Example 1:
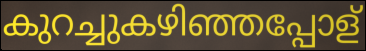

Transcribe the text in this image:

കുറച്ചുകഴിഞ്ഞപ്പോള്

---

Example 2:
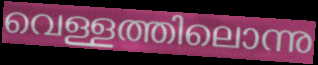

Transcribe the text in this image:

വെള്ളത്തിലൊന്നു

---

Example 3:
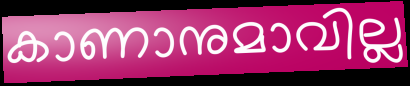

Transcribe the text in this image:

കാണാനുമാവില്ല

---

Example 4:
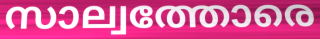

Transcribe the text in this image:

സാല്വത്തോരെ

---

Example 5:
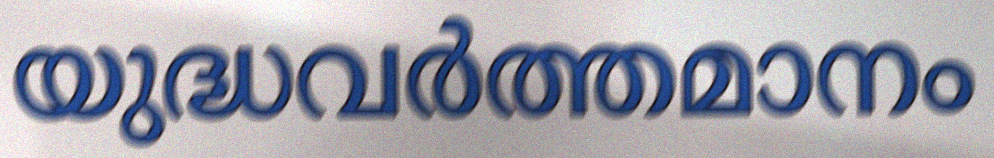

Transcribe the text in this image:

യുദ്ധവർത്തമാനം